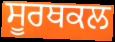
ਸੂਰਥਕਲ